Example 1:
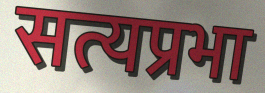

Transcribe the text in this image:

सत्यप्रभा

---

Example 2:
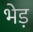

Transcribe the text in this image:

भेड़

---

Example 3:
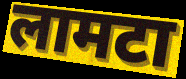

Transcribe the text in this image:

लामटा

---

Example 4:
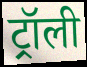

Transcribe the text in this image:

ट्रॉली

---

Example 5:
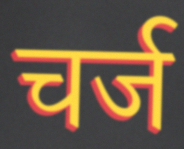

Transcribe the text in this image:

चर्ज